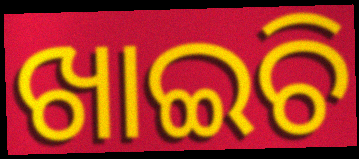
ଖାଇଚି